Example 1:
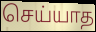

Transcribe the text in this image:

செய்யாத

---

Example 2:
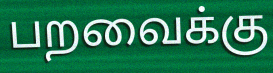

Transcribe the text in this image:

பறவைக்கு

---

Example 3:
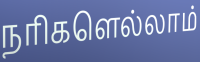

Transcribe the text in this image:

நரிகளெல்லாம்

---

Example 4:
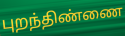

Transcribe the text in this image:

புறந்திண்ணை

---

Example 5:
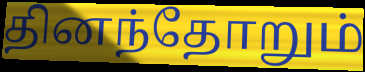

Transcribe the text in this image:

தினந்தோறும்